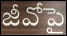
జీవోపై